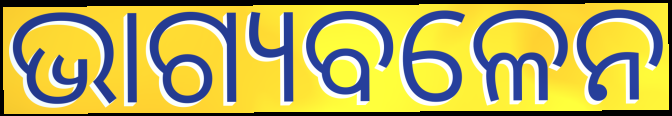
ଭାଗ୍ୟବଳେନ